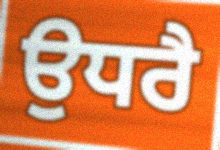
ਉਧਰੈ